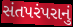
સંતપરંપરાનું